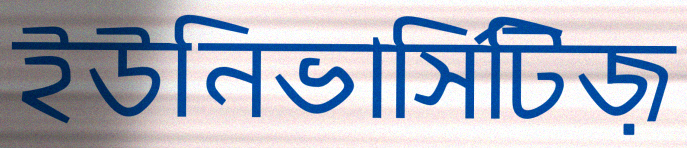
ইউনিভার্সিটিজ়